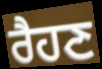
ਰੈਹਣ